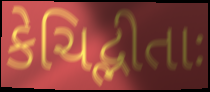
કેચિદ્ભીતાઃ